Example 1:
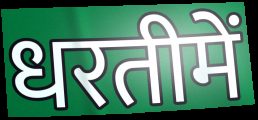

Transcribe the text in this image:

धरतीमें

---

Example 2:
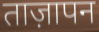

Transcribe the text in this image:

ताज़ापन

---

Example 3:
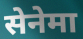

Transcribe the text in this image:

सेनेमा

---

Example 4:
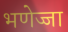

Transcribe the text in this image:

भणेज्जा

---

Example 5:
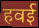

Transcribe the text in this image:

हवई